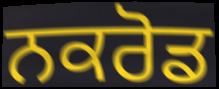
ਨਕਰੋਡ